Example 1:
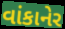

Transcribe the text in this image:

વાંકાનેર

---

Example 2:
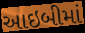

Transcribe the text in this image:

આઇબીમાં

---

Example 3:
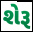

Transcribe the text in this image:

શેરૂ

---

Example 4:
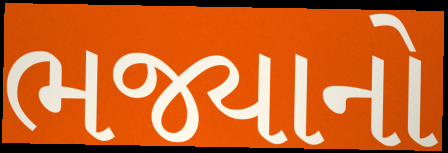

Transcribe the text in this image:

ભજ્યાનો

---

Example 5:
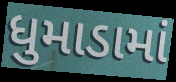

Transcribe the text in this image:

ધુમાડામાં